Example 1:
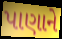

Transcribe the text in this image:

પાણાને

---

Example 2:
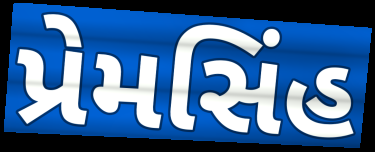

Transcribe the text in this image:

પ્રેમસિંહ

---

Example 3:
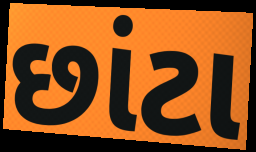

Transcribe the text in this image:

છાંટા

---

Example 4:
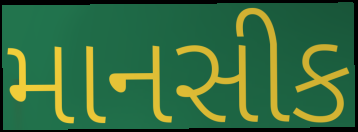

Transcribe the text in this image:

માનસીક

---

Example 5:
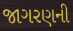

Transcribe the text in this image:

જાગરણની